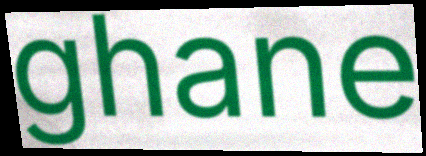
ghane